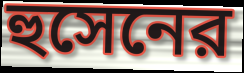
হুসেনের